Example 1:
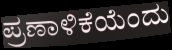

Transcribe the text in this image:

ಪ್ರಣಾಳಿಕೆಯೆಂದು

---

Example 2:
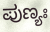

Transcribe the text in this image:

ಪುಣ್ಯಃ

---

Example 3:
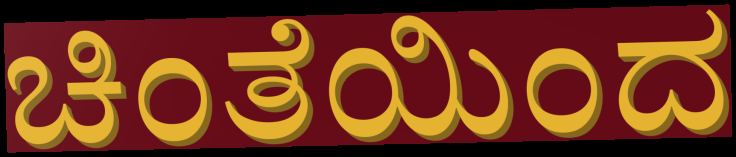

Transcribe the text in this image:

ಚಿಂತೆಯಿಂದ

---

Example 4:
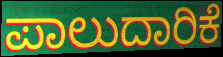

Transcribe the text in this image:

ಪಾಲುದಾರಿಕೆ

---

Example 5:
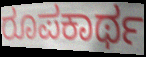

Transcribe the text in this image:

ರೂಪಕಾರ್ಥ